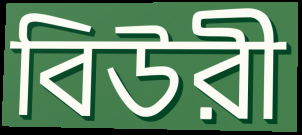
বিউরী